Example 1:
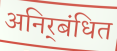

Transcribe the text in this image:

अनिर्बंधित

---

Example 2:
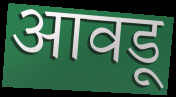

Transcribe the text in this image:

आवडू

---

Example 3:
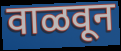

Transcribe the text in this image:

वाळवून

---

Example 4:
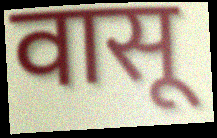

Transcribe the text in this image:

वासू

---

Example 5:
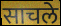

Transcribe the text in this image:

साचले